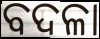
ବଦଳା